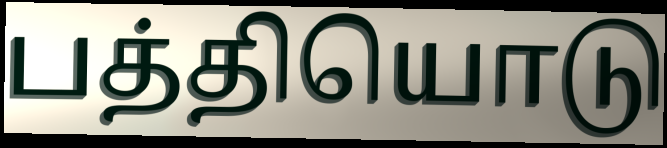
பத்தியொடு